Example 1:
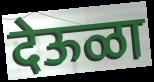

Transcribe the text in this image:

देऊळा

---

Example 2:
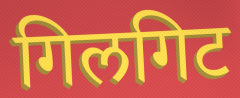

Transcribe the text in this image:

गिलगिट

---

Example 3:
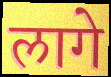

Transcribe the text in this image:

लागे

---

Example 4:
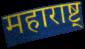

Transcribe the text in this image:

महाराष्ट्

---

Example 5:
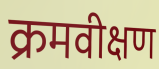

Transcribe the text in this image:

क्रमवीक्षण